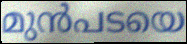
മുൻപടയെ